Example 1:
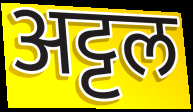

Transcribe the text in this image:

अट्टल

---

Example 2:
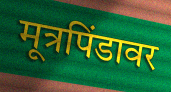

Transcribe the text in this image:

मूत्रपिंडावर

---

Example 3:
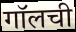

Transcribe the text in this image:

गॉलची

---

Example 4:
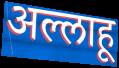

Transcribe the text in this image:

अल्लाहू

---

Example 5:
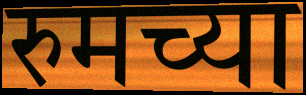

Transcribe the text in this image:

रुमच्या